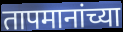
तापमानांच्या